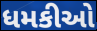
ધમકીઓ